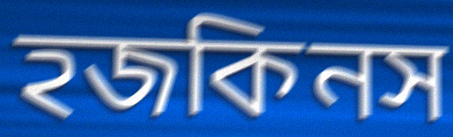
হজকিনস